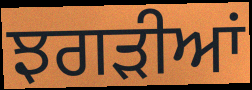
ਝਗੜੀਆਂ